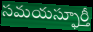
సమయస్ఫూర్తీ